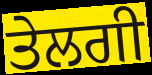
ਤੇਲਗੀ